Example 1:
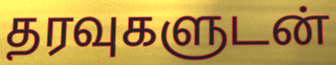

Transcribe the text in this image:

தரவுகளுடன்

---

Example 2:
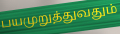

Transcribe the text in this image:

பயமுறுத்துவதும்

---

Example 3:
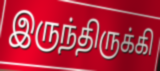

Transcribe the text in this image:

இருந்திருக்கி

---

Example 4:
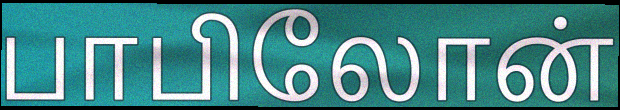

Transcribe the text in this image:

பாபிலோன்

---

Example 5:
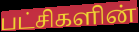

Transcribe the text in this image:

பட்சிகளின்